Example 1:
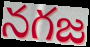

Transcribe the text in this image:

నగజ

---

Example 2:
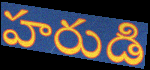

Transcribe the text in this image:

హరుడి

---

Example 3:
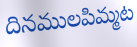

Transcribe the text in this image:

దినములపిమ్మట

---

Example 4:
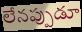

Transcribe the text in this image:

లేనప్పుడూ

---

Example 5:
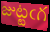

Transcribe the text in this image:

జుట్టఁగ